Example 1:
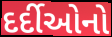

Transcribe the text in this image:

દર્દીઓનો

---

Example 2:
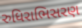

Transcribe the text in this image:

રુધિરાભિસરણ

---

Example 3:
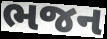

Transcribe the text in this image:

ભજન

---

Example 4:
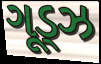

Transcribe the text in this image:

ગૂડ્ઝ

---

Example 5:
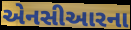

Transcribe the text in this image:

એનસીઆરના